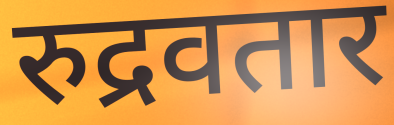
रुद्रवतार